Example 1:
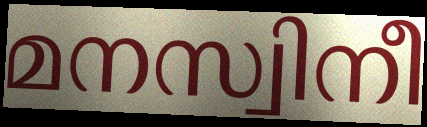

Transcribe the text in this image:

മനസ്വിനീ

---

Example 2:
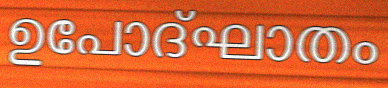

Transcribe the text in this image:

ഉപോദ്ഘാതം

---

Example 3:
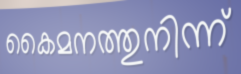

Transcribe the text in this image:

കൈമനത്തുനിന്ന്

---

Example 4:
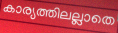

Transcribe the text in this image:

കാര്യത്തിലല്ലാതെ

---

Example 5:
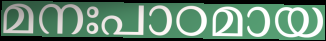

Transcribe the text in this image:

മനഃപാഠമായ